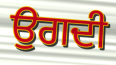
ਉਗਦੀ